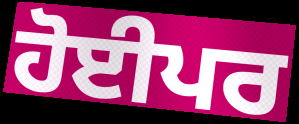
ਹੋਈਪਰ